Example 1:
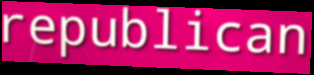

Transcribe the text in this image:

republican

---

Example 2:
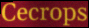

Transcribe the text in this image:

Cecrops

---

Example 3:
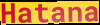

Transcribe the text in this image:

Hatana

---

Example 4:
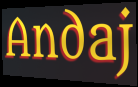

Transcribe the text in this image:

Andaj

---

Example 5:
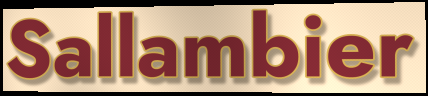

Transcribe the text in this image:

Sallambier